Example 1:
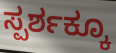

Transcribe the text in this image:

ಸ್ಪರ್ಶಕ್ಕೂ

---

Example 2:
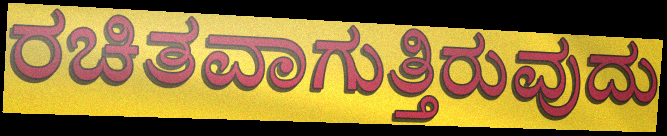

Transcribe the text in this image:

ರಚಿತವಾಗುತ್ತಿರುವುದು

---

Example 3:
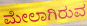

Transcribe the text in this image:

ಮೇಲಾಗಿರುವ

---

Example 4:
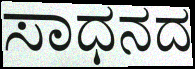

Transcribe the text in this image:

ಸಾಧನದ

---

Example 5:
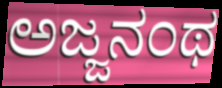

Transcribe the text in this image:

ಅಜ್ಜನಂಥ